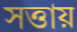
সত্তায়